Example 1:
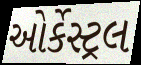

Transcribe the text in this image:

ઓર્કેસ્ટ્રલ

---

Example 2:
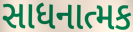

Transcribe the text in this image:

સાધનાત્મક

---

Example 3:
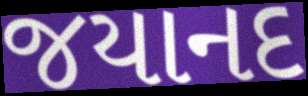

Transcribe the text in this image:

જયાનદ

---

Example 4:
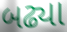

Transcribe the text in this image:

બઢ્યા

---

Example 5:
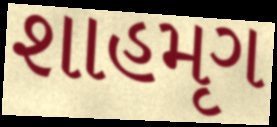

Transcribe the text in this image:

શાહમૃગ